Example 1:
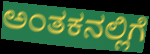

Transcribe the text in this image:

ಅಂತಕನಲ್ಲಿಗೆ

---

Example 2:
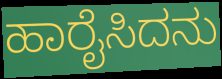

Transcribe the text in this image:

ಹಾರೈಸಿದನು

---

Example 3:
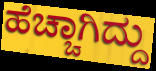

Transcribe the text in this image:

ಹೆಚ್ಚಾಗಿದ್ದು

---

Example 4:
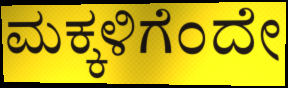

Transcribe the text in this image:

ಮಕ್ಕಳಿಗೆಂದೇ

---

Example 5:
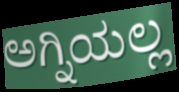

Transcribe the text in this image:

ಅಗ್ನಿಯಲ್ಲ